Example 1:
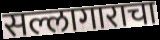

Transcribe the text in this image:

सल्लागाराचा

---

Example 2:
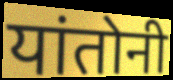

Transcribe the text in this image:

यांतोनी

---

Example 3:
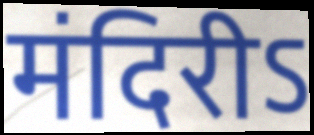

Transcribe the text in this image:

मंदिरीऽ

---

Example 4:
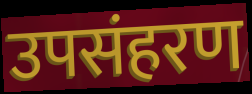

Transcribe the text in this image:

उपसंहरण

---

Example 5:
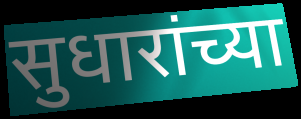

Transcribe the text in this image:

सुधारांच्या